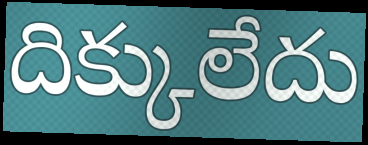
దిక్కులేదు